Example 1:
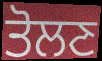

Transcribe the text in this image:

ਤੋਲਣ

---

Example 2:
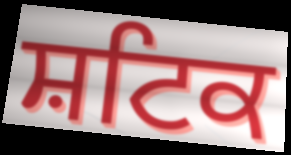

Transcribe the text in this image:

ਸ਼ਟਿਕ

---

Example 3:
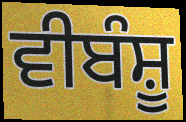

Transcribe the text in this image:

ਵੀਬੰਸ਼ੂ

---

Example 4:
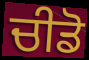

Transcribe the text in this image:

ਚੀਡੋ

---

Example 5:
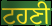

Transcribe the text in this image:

ਟਹਣੀ